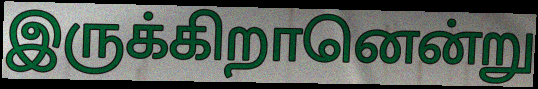
இருக்கிறானென்று